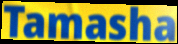
Tamasha